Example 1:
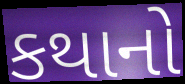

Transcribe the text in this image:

કથાનો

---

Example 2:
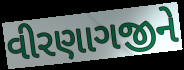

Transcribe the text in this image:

વીરણાગજીને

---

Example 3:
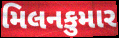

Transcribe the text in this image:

મિલનકુમાર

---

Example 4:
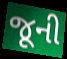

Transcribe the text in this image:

જૂની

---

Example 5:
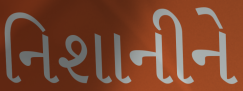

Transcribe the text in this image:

નિશાનીને